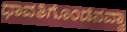
ಧಾವತಿಗೊಂಡೆನವ್ವಾ